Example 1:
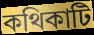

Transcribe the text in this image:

কথিকাটি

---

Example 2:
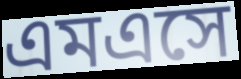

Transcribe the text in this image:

এমএসে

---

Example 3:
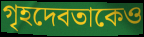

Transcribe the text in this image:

গৃহদেবতাকেও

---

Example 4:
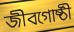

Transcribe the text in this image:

জীবগোষ্ঠী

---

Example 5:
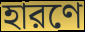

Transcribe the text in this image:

হারণে